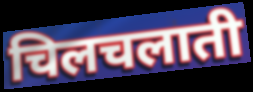
चिलचलाती